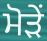
ਮੋੜੇਂ